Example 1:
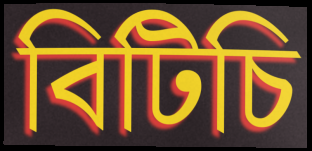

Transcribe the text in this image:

বিটিচি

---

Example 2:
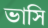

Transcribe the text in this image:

ভাসি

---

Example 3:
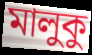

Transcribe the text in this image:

মালুকু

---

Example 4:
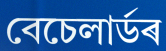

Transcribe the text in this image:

বেচেলাৰ্ডৰ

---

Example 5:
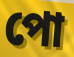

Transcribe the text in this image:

পো